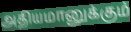
அதியமானுக்கும்